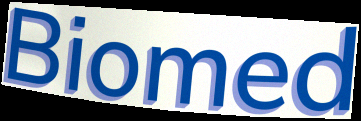
Biomed